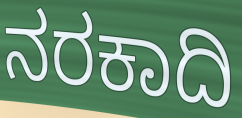
ನರಕಾದಿ